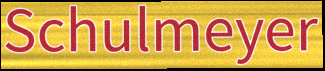
Schulmeyer